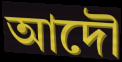
আদৌ